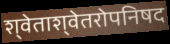
श्वेताश्वेतरोपनिषद